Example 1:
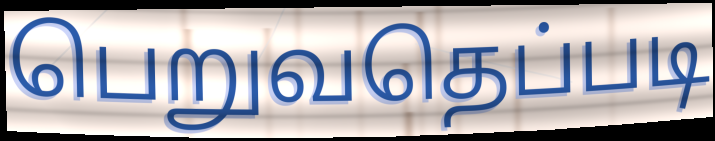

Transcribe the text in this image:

பெறுவதெப்படி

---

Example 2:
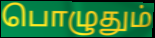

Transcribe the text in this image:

பொழுதும்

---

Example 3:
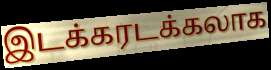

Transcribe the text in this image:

இடக்கரடக்கலாக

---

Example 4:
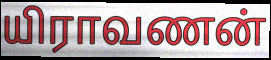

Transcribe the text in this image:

யிராவணன்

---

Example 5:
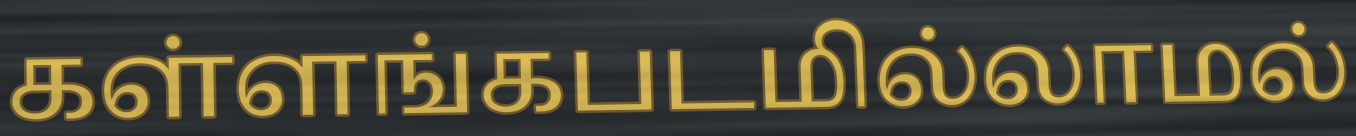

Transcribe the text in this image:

கள்ளங்கபடமில்லாமல்